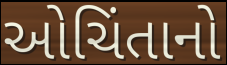
ઓચિંતાનો